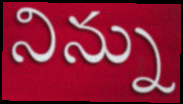
నిన్ను